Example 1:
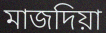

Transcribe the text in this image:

মাজদিয়া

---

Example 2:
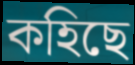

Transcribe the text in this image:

কহিছে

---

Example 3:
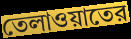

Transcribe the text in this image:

তেলাওয়াতের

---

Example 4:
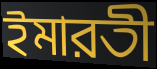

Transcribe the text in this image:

ইমারতী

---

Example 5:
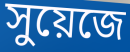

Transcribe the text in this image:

সুয়েজে